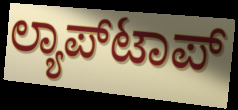
ಲ್ಯಾಪ್‍ಟಾಪ್